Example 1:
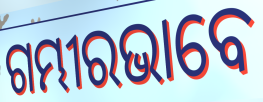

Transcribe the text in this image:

ଗମ୍ଭୀରଭାବେ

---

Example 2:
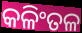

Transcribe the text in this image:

କଳିଂତଳ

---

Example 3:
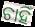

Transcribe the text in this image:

ଚାହିଁ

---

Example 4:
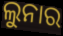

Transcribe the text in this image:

ଲୁନାର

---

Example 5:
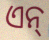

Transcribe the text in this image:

ଏନ୍